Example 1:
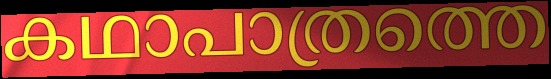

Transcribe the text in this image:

കഥാപാത്രത്തെ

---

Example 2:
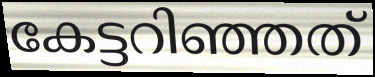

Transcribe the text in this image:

കേട്ടറിഞ്ഞത്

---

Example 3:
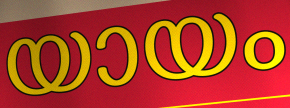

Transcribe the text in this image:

യായം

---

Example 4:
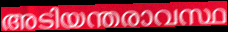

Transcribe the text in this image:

അടിയന്തരാവസ്ഥ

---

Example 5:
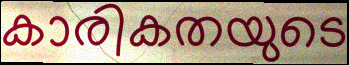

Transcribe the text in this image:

കാരികതയുടെ